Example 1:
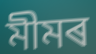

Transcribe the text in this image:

মীমৰ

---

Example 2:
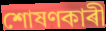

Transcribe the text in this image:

শোষণকাৰী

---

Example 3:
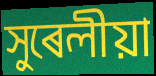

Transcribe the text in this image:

সুৰেলীয়া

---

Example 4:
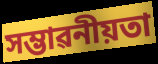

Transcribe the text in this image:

সম্ভাৱনীয়তা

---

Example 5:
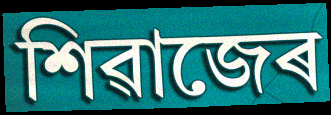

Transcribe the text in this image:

শিৱাজেৰ